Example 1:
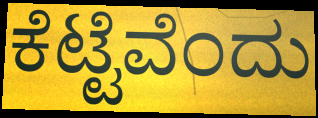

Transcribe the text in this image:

ಕೆಟ್ಟೆವೆಂದು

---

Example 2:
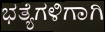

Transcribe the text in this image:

ಭತ್ಯೆಗಳಿಗಾಗಿ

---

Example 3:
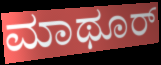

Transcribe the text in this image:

ಮಾಥೂರ್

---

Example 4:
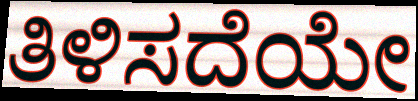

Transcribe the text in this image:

ತಿಳಿಸದೆಯೇ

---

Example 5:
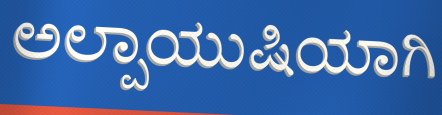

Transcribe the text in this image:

ಅಲ್ಪಾಯುಷಿಯಾಗಿ